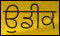
ਉਡੀਕ